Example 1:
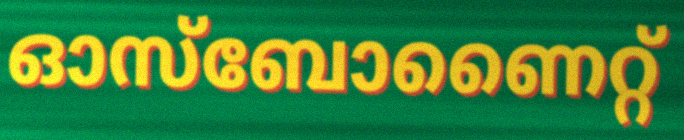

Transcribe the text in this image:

ഓസ്ബോണൈറ്റ്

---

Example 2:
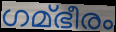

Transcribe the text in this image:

ഗമ്ഭീരം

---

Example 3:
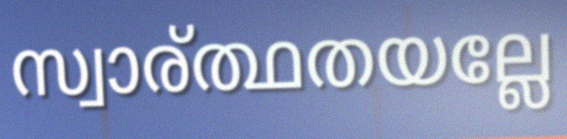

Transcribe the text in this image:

സ്വാര്ത്ഥതയല്ലേ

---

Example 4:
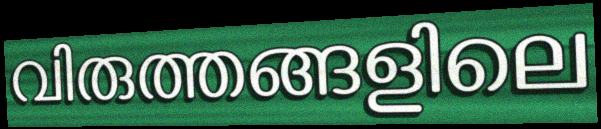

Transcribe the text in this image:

വിരുത്തങ്ങളിലെ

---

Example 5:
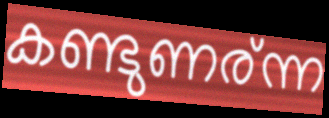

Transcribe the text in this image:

കണ്ടുണര്ന്ന